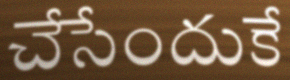
చేసేందుకే